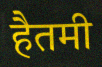
हैतमी